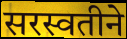
सरस्वतीने